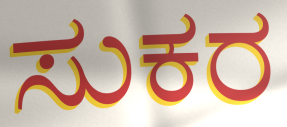
ಸುಕರ